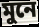
মুনে